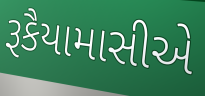
રૂકૈયામાસીએ